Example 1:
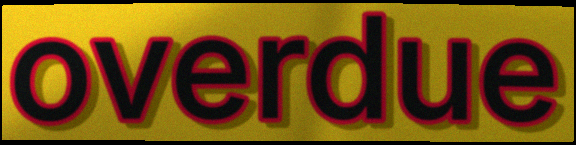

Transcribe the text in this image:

overdue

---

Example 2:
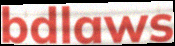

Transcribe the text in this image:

bdlaws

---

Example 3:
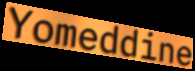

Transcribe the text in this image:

Yomeddine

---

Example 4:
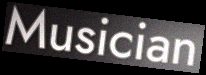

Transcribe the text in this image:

Musician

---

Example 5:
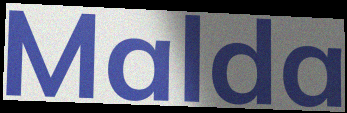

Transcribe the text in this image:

Malda